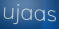
ujaas